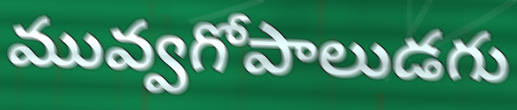
మువ్వగోపాలుడగు